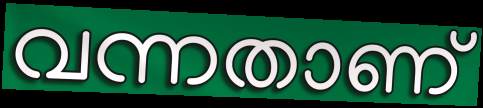
വന്നതാണ്